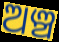
ଅଞ୍ଚ